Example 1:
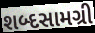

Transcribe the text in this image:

શબ્દસામગ્રી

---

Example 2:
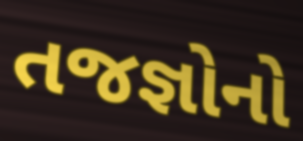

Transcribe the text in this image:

તજજ્ઞોનો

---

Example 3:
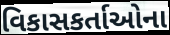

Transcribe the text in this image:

વિકાસકર્તાઓના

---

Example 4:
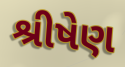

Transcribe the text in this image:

શ્રીષેણ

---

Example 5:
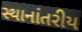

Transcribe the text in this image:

સ્થાનાંતરીય